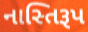
નાસ્તિરૂપ